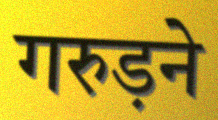
गरुड़ने